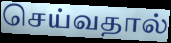
செய்வதால்